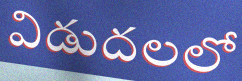
విడుదలలో